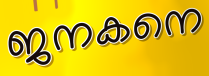
ജനകനെ